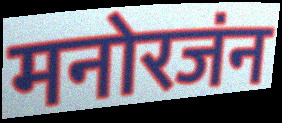
मनोरजंन